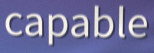
capable